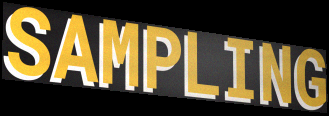
SAMPLING